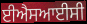
ਈਐਸਆਈਸੀ